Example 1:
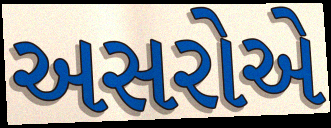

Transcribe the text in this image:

અસરોએ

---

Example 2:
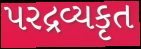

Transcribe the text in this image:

પરદ્રવ્યકૃત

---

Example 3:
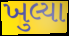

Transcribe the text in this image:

ખુલ્યા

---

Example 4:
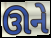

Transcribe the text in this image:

ઊને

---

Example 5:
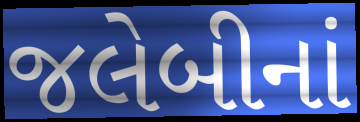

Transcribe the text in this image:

જલેબીનાં